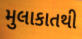
મુલાકાતથી